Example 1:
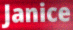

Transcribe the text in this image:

Janice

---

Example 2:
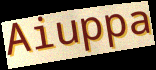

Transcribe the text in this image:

Aiuppa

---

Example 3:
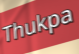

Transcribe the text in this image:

Thukpa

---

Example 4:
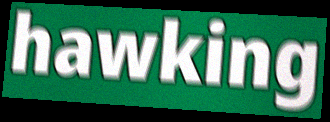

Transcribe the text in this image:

hawking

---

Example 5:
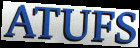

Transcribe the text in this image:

ATUFS